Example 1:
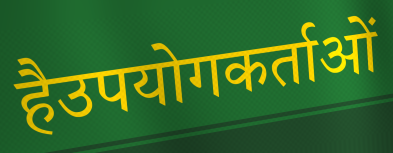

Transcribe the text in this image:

हैउपयोगकर्ताओं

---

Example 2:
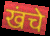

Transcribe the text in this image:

खंचे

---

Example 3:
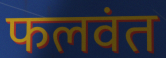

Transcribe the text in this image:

फलवंत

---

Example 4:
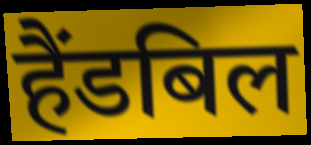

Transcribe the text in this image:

हैंडबिल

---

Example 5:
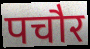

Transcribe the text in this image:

पचौर